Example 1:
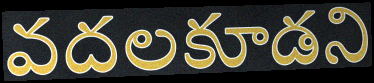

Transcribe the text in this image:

వదలకూడని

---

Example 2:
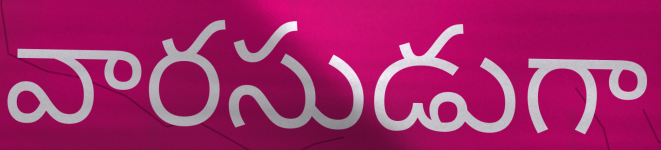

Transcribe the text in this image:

వారసుడుగా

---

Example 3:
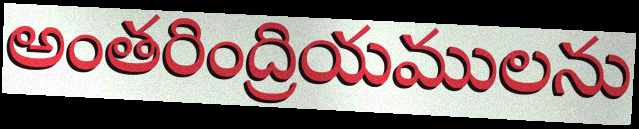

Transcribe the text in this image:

అంతరింద్రియములను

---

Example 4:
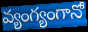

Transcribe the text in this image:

వ్యంగ్యంగానో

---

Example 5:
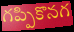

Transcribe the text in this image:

గప్పికొనగ